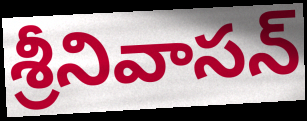
శ్రీనివాసన్